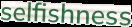
selfishness